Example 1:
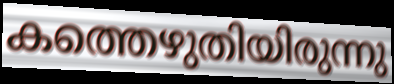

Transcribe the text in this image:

കത്തെഴുതിയിരുന്നു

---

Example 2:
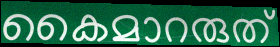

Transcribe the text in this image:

കൈമാറരുത്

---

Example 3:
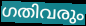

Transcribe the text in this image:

ഗതിവരും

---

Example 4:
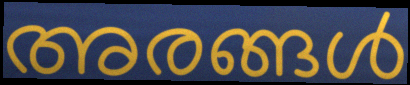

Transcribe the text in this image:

അരങ്ങൾ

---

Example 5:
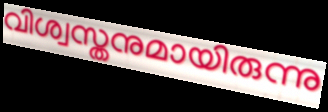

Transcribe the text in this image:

വിശ്വസ്തനുമായിരുന്നു